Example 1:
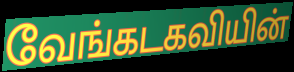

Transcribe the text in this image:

வேங்கடகவியின்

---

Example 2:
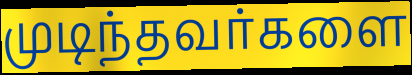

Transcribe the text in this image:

முடிந்தவர்களை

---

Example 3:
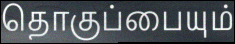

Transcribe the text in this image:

தொகுப்பையும்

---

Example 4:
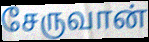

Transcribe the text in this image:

சேருவான்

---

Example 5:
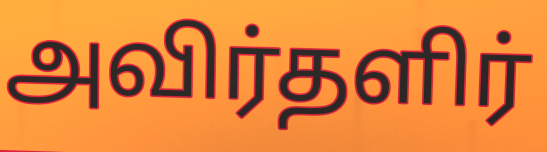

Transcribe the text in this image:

அவிர்தளிர்